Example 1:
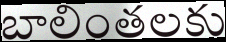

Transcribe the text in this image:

బాలింతలకు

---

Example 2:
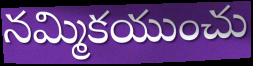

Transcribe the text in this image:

నమ్మికయుంచు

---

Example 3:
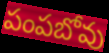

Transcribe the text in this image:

పంపబోవు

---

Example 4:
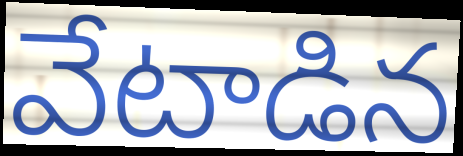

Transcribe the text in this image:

వేటాడిన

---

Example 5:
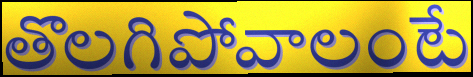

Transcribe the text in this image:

తొలగిపోవాలంటే